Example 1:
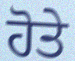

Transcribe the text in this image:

ਹੋਤੇ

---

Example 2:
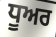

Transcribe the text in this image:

ਧੂਅਰ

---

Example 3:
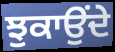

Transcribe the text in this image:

ਝੁਕਾਉਂਦੇ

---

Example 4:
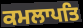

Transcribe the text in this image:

ਕਮਲਾਪਤਿ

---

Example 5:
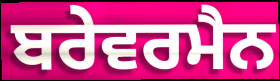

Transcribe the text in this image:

ਬਰੇਵਰਮੈਨ